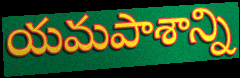
యమపాశాన్ని